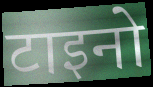
टाइनो